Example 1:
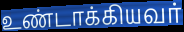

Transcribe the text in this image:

உண்டாக்கியவர்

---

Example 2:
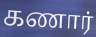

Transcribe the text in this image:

கணார்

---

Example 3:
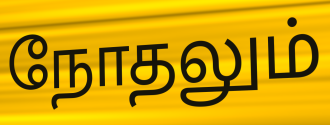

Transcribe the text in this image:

நோதலும்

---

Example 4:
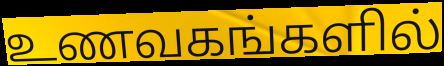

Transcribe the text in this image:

உணவகங்களில்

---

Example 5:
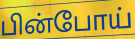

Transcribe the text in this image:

பின்போய்